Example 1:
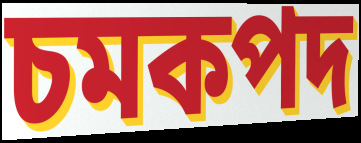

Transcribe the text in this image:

চমকপদ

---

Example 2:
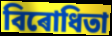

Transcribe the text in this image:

বিৰোধিতা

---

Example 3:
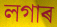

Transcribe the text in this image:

লগাৰ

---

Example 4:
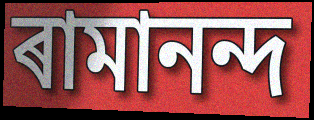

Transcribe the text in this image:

ৰামানন্দ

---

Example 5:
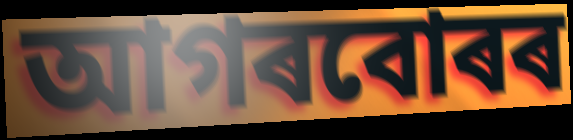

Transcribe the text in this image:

আগৰবোৰৰ